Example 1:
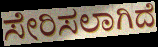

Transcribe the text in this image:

ಸೇರಿಸಲಾಗಿದೆ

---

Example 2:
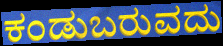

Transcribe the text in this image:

ಕಂಡುಬರುವದು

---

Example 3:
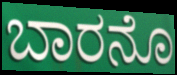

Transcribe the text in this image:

ಬಾರನೊ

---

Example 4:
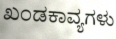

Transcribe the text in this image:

ಖಂಡಕಾವ್ಯಗಳು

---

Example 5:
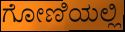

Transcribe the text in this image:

ಗೋಣಿಯಲ್ಲಿ